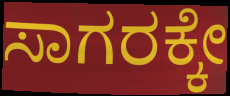
ಸಾಗರಕ್ಕೇ